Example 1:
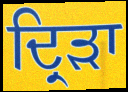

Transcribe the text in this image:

ਦ੍ਰਿੜਾ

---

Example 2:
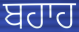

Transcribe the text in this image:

ਬਹਾਹ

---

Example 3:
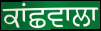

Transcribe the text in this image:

ਕਾਂਛਵਾਲਾ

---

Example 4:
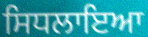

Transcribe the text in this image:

ਸਿਧਲਾਇਆ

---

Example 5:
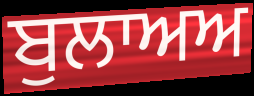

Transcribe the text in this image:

ਬੁਲਾਅਅ